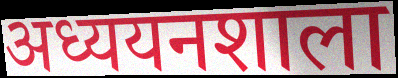
अध्ययनशाला